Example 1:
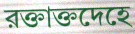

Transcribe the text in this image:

রক্তাক্তদেহে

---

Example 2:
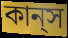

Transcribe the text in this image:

কান্‌স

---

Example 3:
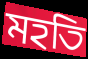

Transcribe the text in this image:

মহতি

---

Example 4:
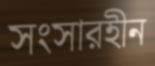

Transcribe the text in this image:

সংসারহীন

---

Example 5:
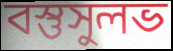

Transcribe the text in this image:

বস্তুসুলভ